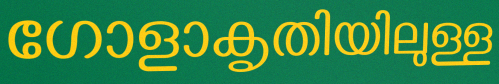
ഗോളാകൃതിയിലുള്ള